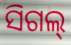
ସିଗଲ୍